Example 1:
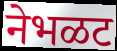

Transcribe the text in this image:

नेभळट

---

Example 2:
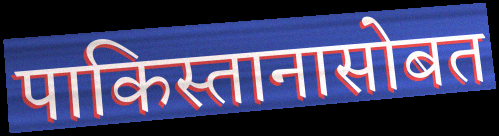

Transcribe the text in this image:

पाकिस्तानासोबत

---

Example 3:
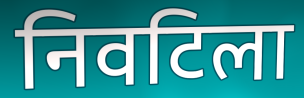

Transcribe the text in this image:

निवटिला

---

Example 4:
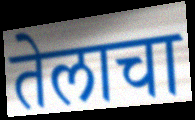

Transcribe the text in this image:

तेलाचा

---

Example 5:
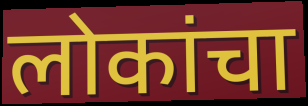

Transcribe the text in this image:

लोकांचा